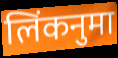
लिंकनुमा